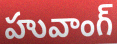
హువాంగ్